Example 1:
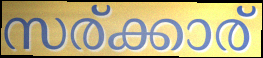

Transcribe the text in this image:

സര്ക്കാര്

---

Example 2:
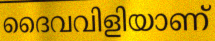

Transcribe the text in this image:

ദൈവവിളിയാണ്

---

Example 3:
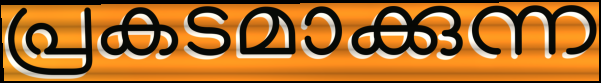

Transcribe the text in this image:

പ്രകടമാക്കുന്ന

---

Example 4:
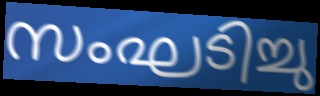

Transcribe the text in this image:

സംഘടിച്ചു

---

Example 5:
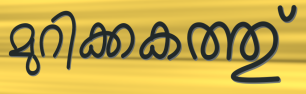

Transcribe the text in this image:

മുറിക്കകത്തു്